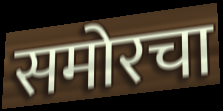
समोरचा